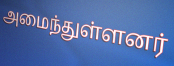
அமைந்துள்ளனர்